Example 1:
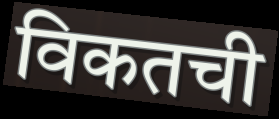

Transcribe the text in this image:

विकतची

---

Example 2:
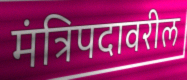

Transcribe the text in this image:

मंत्रिपदावरील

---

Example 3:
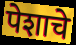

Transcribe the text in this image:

पेशाचे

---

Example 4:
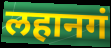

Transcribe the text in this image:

लहानगं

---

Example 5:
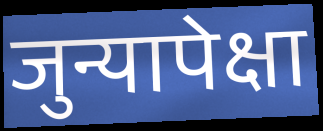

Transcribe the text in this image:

जुन्यापेक्षा